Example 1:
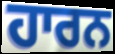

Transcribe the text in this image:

ਹਾਰਨ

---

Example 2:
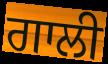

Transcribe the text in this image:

ਗਾਲੀ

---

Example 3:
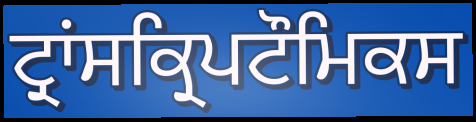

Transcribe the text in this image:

ਟ੍ਰਾਂਸਕ੍ਰਿਪਟੌਮਿਕਸ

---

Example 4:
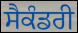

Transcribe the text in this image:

ਸੈਕੰਡਰੀ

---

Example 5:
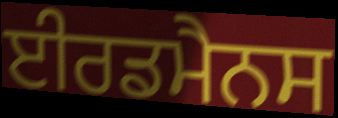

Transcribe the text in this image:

ਈਰਡਮੈਨਸ